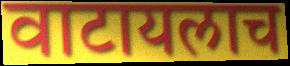
वाटायलाच